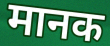
मानक